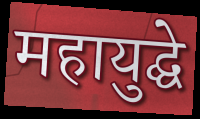
महायुद्घे